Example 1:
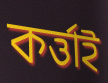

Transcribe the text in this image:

কৰ্ত্তাই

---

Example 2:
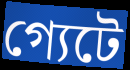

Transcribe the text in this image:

গ্যেটে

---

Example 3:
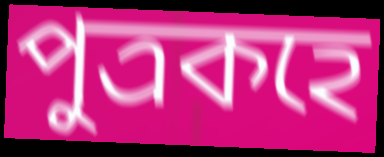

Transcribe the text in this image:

পুত্ৰকহে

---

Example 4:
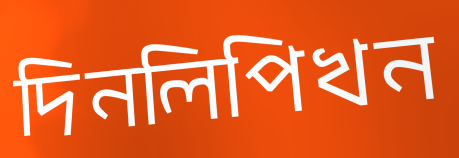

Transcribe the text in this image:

দিনলিপিখন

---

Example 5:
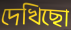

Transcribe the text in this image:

দেখিছো